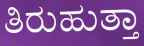
ತಿರುಹುತ್ತಾ